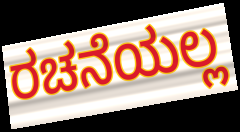
ರಚನೆಯಲ್ಲ